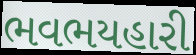
ભવભયહારી